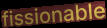
fissionable